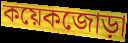
কয়েকজোড়া